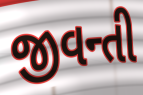
જીવન્તી